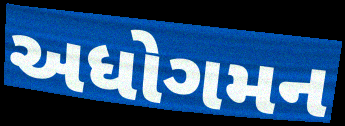
અધોગમન